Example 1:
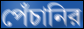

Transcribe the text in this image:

পেঁচানির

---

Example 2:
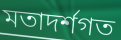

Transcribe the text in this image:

মতাদর্শগত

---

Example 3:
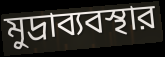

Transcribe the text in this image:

মুদ্রাব্যবস্থার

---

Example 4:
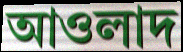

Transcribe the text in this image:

আওলাদ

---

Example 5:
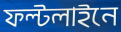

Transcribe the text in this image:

ফল্টলাইনে